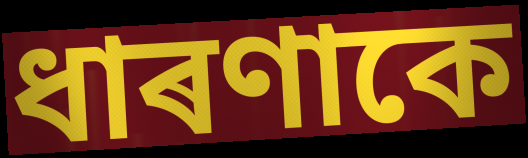
ধাৰণাকে